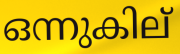
ഒന്നുകില്